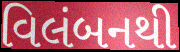
વિલંબનથી